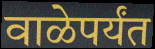
वाळेपर्यंत